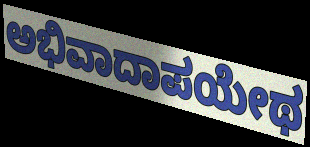
ಅಭಿವಾದಾಪಯೇಥ